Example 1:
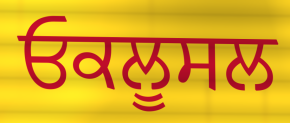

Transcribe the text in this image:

ਓਕਲੂਸਲ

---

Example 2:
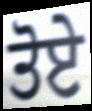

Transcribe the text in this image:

ਤੋਏ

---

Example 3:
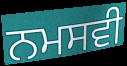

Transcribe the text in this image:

ਨਮਸਵੀ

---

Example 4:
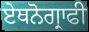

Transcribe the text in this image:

ਏਥਨੋਗ੍ਰਾਫੀ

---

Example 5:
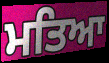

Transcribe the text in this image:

ਮਤਿਆ